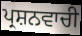
ਪ੍ਰਸ਼ਨਵਾਚੀ